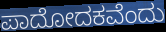
ಪಾದೋದಕವೆಂದು